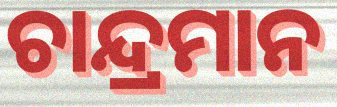
ଚାନ୍ଦ୍ରମାନ